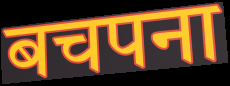
बचपना